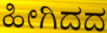
ಹೀಗಿದದ